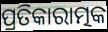
ପ୍ରତିକାରାତ୍ମକ